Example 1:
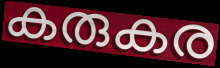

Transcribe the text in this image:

കരുകര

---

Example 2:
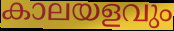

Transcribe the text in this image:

കാലയളവും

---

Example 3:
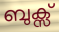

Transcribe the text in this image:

ബുക്സ്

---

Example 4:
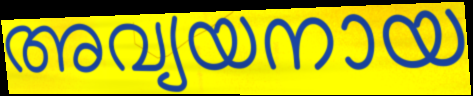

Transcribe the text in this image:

അവ്യയനായ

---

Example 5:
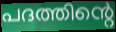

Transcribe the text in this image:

പദത്തിന്റെ